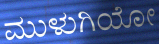
ಮುಳುಗಿಯೋ